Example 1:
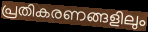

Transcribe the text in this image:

പ്രതികരണങ്ങളിലും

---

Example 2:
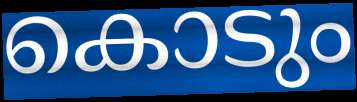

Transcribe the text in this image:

കൊടും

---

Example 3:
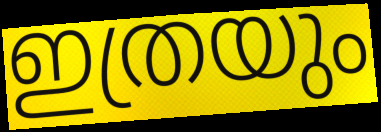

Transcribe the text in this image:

ഇത്രയും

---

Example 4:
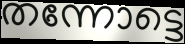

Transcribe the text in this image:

തന്നോട്ടെ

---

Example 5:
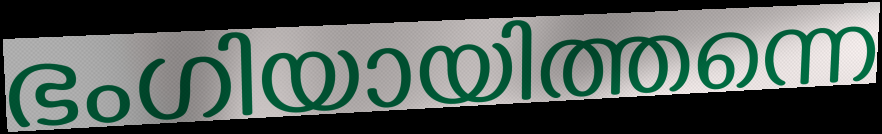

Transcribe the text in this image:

ഭംഗിയായിത്തന്നെ